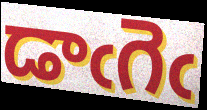
డాఁగెఁ